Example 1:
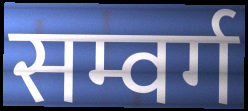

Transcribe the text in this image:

सम्वर्ग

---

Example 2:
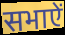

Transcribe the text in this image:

सभाऐं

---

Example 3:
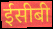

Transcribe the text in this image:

ईसीबी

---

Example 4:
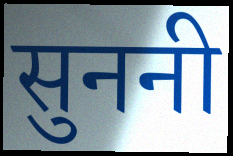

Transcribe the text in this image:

सुननी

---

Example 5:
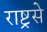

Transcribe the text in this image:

राष्ट्रसे